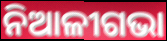
ନିଆଳୀଗଭା